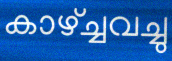
കാഴ്ച്ചവച്ചു